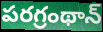
పరగ్రంథాన్